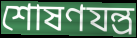
শোষণযন্ত্র